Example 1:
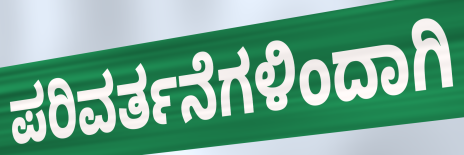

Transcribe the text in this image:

ಪರಿವರ್ತನೆಗಳಿಂದಾಗಿ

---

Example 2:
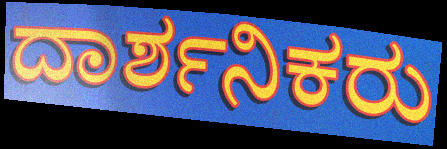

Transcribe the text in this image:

ದಾರ್ಶನಿಕರು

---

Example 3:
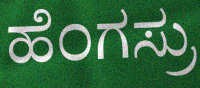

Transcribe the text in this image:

ಹೆಂಗಸ್ರು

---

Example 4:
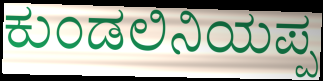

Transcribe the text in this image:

ಕುಂಡಲಿನಿಯಪ್ಪ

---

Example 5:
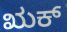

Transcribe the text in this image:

ಋಕ್